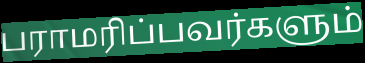
பராமரிப்பவர்களும்